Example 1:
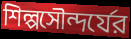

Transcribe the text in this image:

শিল্পসৌন্দর্যের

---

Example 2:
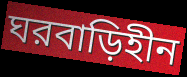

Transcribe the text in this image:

ঘরবাড়িহীন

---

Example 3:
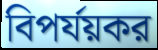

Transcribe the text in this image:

বিপর্যয়কর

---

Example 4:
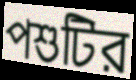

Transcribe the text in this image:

পশুটির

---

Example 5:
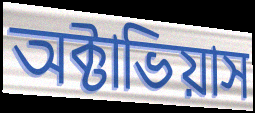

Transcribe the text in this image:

অক্টাভিয়াস